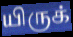
யிருக்